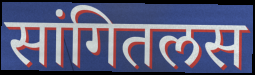
सांगितलस